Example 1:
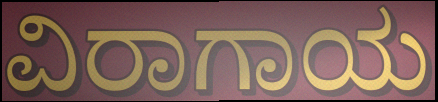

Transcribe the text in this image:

ವಿರಾಗಾಯ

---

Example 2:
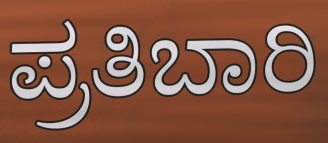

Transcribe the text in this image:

ಪ್ರತಿಬಾರಿ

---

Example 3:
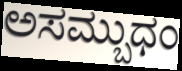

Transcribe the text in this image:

ಅಸಮ್ಬುಧಂ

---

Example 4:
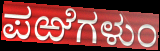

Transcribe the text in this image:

ಪಱೆಗಳುಂ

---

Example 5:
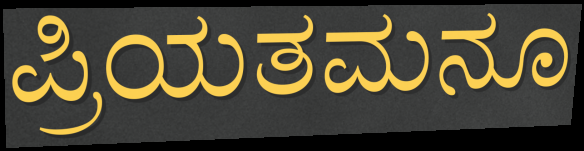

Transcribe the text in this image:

ಪ್ರಿಯತಮನೂ